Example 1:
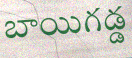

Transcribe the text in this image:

బాయిగడ్డ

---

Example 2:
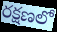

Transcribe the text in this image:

రక్షణలో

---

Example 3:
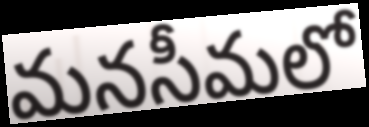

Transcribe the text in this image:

మనసీమలో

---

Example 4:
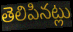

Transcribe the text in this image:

తెలిపినట్లు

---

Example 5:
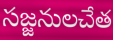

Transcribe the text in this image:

సజ్జనులచేత